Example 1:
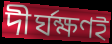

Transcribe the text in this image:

দীর্ঘক্ষণই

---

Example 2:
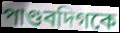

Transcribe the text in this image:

পাণ্ডবদিগকে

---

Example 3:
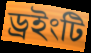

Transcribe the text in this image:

ড্রইংটি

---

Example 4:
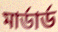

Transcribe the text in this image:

মার্ডার্ড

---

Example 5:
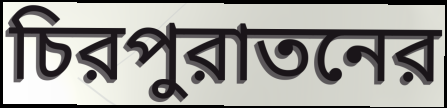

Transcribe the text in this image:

চিরপুরাতনের